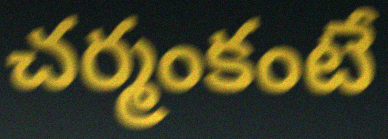
చర్మంకంటే